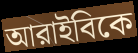
আরাইবিকে